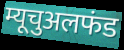
म्यूचुअलफंड